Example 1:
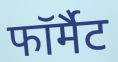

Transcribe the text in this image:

फॉर्मैट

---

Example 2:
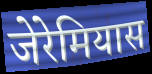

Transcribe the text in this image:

जेरेमियास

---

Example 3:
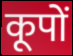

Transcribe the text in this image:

कूपों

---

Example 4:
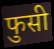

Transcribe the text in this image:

फुसी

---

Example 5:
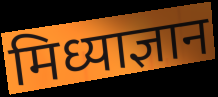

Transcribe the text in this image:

मिध्याज्ञान